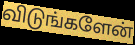
விடுங்களேன்